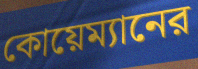
কোয়েম্যানের